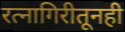
रत्नागिरीतूनही